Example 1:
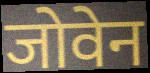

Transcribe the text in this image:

जोवेन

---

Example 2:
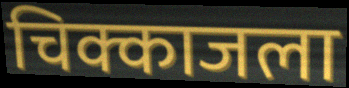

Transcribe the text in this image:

चिक्काजला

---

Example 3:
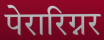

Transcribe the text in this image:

पेरारिग्नर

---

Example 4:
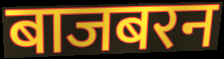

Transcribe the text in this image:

बाजबरन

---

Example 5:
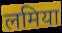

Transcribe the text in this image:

लमिया